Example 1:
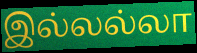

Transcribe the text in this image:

இல்லல்லா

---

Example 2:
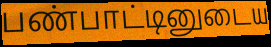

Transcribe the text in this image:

பண்பாட்டினுடைய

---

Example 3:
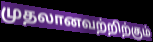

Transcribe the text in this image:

முதலானவற்றிற்கும்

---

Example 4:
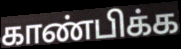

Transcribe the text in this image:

காண்பிக்க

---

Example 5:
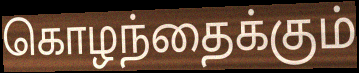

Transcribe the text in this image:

கொழந்தைக்கும்